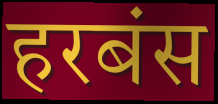
हरबंस